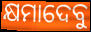
କ୍ଷମାଦେବୁ